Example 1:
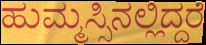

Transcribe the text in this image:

ಹುಮ್ಮಸ್ಸಿನಲ್ಲಿದ್ದರೆ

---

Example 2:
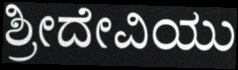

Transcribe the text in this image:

ಶ್ರೀದೇವಿಯು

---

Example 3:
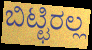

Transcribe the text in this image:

ಬಿಟ್ಟಿರಲ್ಲ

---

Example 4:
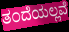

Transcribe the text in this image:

ತಂದೆಯಲ್ಲವೆ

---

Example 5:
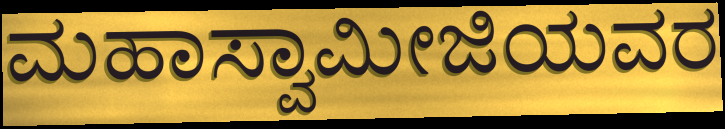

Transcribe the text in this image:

ಮಹಾಸ್ವಾಮೀಜಿಯವರ